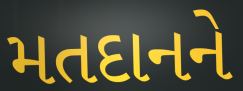
મતદાનને